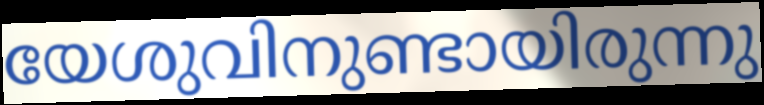
യേശുവിനുണ്ടായിരുന്നു